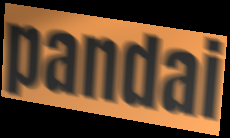
pandai